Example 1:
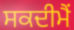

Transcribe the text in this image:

ਸਕਦੀਮੈਂ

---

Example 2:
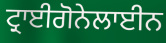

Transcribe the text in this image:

ਟ੍ਰਾਈਗੋਨੇਲਾਈਨ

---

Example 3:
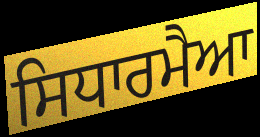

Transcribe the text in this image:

ਸਿਧਾਰਮੈਆ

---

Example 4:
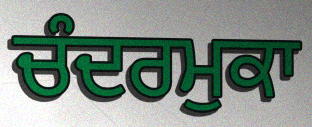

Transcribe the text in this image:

ਚੰਦਰਮੁਕਾ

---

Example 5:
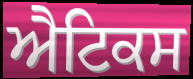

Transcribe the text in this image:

ਐਟਿਕਸ